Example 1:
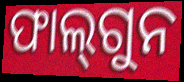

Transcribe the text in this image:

ଫାଲ୍‍ଗୁନ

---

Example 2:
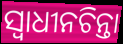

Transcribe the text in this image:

ସ୍ୱାଧୀନଚିନ୍ତା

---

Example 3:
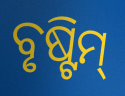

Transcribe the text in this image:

ବୃଷ୍ଟିମ୍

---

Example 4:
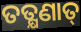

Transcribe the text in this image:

ତତ୍କ୍ଷଣାତ୍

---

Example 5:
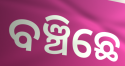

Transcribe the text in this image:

ବଞ୍ଚିଛେ